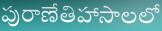
పురాణేతిహాసాలలో